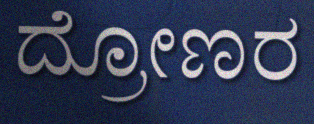
ದ್ರೋಣರ